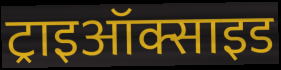
ट्राइऑक्साइड